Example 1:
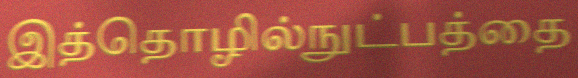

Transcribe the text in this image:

இத்தொழில்நுட்பத்தை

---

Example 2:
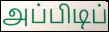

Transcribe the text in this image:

அப்பிடிப்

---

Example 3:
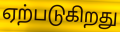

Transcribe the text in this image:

ஏற்படுகிறது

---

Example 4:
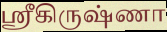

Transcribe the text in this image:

ஸ்ரீகிருஷ்ணா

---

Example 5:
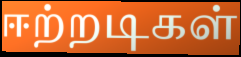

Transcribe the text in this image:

ஈற்றடிகள்